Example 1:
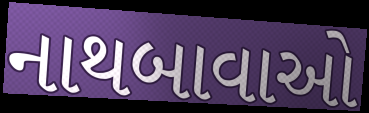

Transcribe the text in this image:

નાથબાવાઓ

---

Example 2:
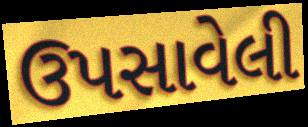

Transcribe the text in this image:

ઉપસાવેલી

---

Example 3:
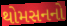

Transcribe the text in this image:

થોમસનનો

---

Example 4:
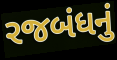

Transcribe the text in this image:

રજબંધનું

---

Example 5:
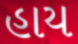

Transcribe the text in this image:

હાય